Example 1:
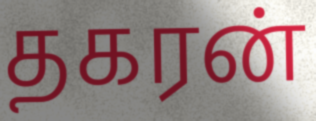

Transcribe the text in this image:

தகரன்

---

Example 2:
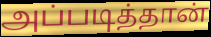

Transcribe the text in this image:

அப்படித்தான்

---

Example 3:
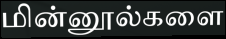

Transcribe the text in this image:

மின்னூல்களை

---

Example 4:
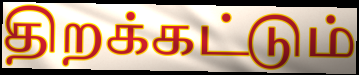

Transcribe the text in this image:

திறக்கட்டும்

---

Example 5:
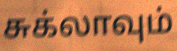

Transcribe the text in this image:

சுக்லாவும்